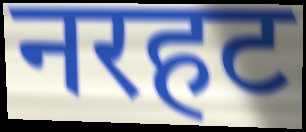
नरहट